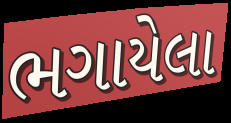
ભગાયેલા